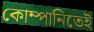
কোম্পানিতেই